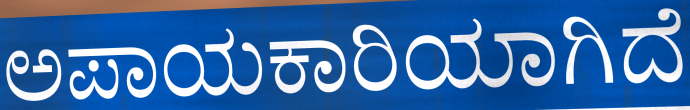
ಅಪಾಯಕಾರಿಯಾಗಿದೆ